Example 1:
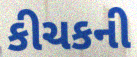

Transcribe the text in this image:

કીચકની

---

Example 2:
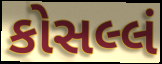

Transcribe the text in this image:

કોસલ્લં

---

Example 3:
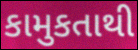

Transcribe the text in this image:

કામુકતાથી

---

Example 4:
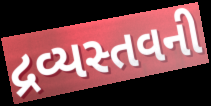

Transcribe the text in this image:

દ્રવ્યસ્તવની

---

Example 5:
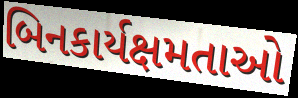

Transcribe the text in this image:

બિનકાર્યક્ષમતાઓ